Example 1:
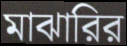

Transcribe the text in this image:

মাঝারির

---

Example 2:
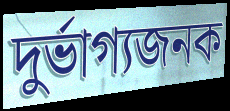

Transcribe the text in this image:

দুর্ভাগ্যজনক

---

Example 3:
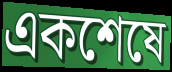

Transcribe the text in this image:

একশেষে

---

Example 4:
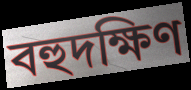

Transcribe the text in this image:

বহুদক্ষিণ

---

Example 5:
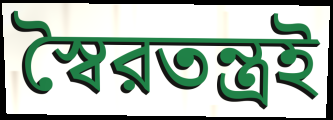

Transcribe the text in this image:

স্বৈরতন্ত্রই